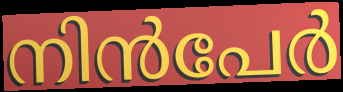
നിൻപേർ